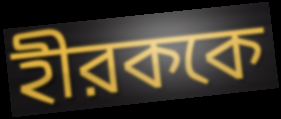
হীরককে